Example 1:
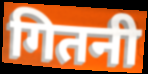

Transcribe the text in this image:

गितनी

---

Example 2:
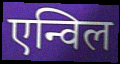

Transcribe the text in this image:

एन्विल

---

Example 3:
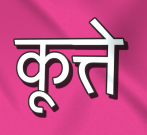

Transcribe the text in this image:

कूत्ते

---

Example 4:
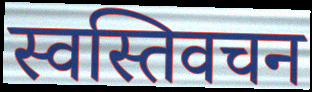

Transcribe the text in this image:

स्वस्तिवचन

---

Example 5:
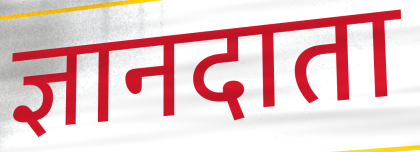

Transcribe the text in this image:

ज्ञानदाता